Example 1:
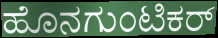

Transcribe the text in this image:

ಹೊನಗುಂಟಿಕರ್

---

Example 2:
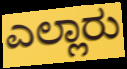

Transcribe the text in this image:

ಎಲ್ಲಾರು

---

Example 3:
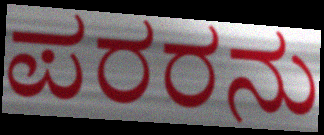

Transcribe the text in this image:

ಪರರನು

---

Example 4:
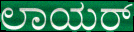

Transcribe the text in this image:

ಲಾಯರ್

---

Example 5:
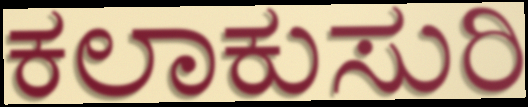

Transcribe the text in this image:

ಕಲಾಕುಸುರಿ